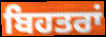
ਬਿਹਤਰਾਂ